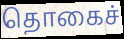
தொகைச்